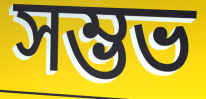
সম্ভভ